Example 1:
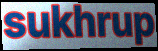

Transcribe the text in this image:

sukhrup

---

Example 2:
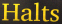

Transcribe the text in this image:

Halts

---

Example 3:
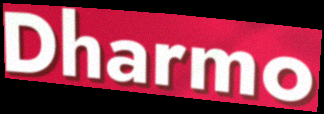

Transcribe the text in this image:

Dharmo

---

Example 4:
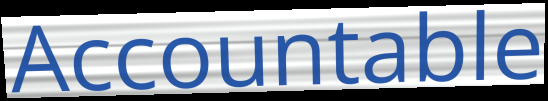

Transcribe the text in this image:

Accountable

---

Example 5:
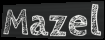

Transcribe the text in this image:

Mazel